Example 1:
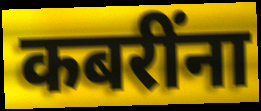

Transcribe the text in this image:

कबरींना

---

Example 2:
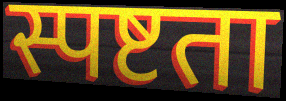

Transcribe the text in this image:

स्पष्टता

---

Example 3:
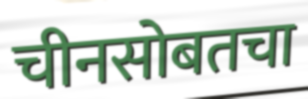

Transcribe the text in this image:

चीनसोबतचा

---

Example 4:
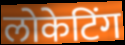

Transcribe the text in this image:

लोकेटिंग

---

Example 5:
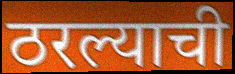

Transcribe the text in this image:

ठरल्याची